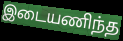
இடையணிந்த